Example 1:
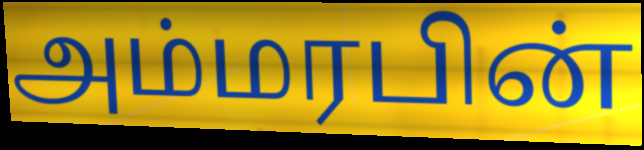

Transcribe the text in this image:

அம்மரபின்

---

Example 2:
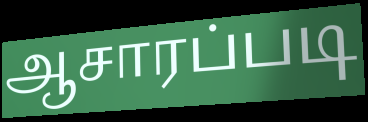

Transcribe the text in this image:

ஆசாரப்படி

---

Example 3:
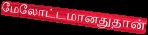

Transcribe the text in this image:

மேலோட்டமானதுதான்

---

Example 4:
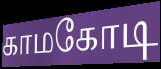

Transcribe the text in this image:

காமகோடி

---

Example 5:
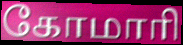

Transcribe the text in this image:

கோமாரி